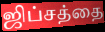
ஜிப்சத்தை